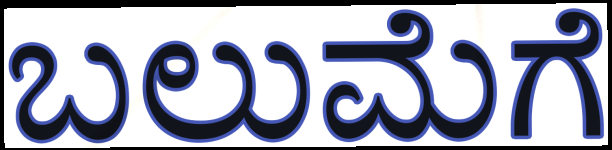
ಬಲುಮೆಗೆ